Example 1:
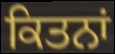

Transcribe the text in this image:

ਕਿਤਨਾਂ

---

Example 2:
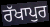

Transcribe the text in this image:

ਰੱਖਾਪੁਰ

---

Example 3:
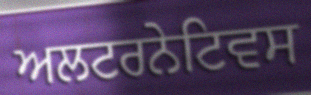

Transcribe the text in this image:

ਅਲਟਰਨੇਟਿਵਸ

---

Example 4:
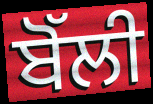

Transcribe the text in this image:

ਬੋੱਲੀ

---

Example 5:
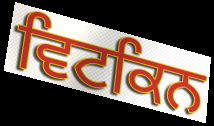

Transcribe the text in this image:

ਵਿਟਕਿਨ